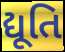
દ્યૂતિ